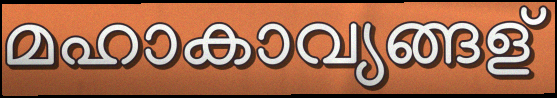
മഹാകാവ്യങ്ങള്